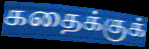
கதைக்குக்